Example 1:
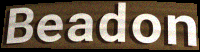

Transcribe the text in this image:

Beadon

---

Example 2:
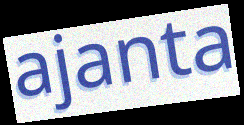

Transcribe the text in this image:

ajanta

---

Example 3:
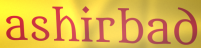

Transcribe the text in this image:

ashirbad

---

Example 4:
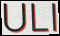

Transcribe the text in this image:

ULI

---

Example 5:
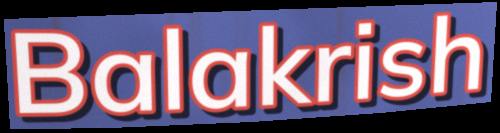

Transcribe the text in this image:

Balakrish